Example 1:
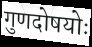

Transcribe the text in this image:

गुणदोषयोः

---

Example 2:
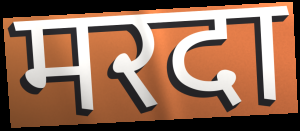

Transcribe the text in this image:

मरदा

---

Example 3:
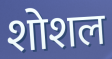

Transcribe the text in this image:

शोशल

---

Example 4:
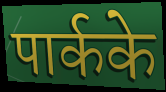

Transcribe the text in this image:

पार्कके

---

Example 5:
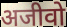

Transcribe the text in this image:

अजीवो